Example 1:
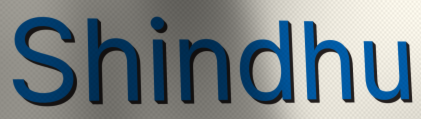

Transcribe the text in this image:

Shindhu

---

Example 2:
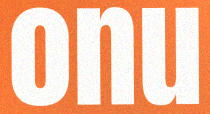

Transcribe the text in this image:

onu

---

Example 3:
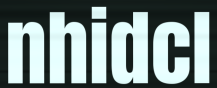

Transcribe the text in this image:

nhidcl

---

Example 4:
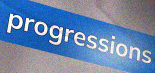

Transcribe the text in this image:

progressions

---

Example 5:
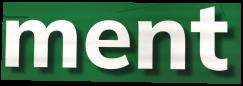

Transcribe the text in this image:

ment